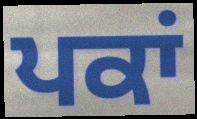
ਪਕਾਂ